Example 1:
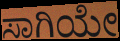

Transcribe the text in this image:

ಸಾಗಿಯೇ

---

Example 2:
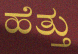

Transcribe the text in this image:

ಹೆತ್ತು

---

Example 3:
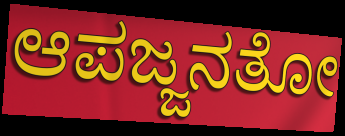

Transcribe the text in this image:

ಆಪಜ್ಜನತೋ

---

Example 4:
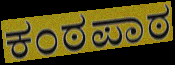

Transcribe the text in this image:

ಕಂಠಪಾಠ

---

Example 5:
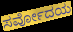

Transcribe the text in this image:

ಸರ್ವೋದಯ